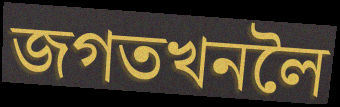
জগতখনলৈ